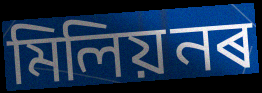
মিলিয়নৰ